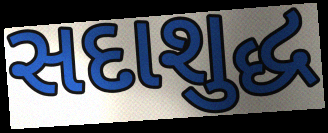
સદાશુદ્ધ